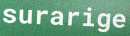
surarige